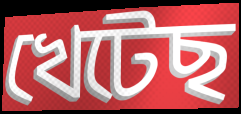
খেটেছ